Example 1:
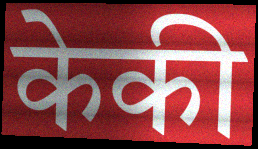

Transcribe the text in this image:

केकी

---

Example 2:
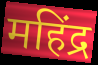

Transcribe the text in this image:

महिंद्र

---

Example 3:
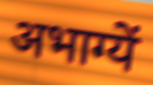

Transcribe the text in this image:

अभाग्यें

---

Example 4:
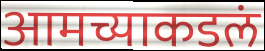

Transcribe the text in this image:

आमच्याकडलं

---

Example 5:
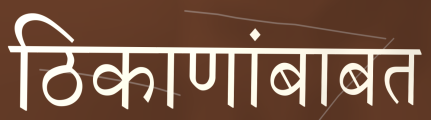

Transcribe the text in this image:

ठिकाणांबाबत